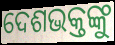
ଦେଶଭକ୍ତଙ୍କୁ